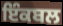
ਇੰਕਬਲ